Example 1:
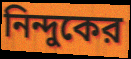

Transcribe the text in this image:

নিন্দুকের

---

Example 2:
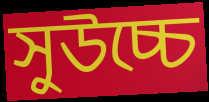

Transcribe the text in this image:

সুউচ্চে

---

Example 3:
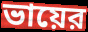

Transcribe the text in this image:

ভায়ের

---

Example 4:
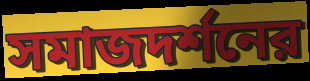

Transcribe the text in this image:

সমাজদর্শনের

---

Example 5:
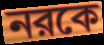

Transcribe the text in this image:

নরকে